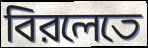
বিরলেতে